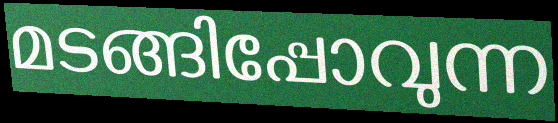
മടങ്ങിപ്പോവുന്ന